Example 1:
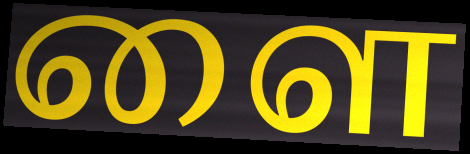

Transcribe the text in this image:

ளை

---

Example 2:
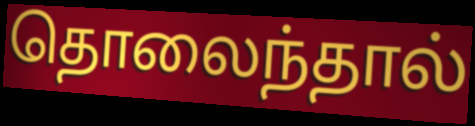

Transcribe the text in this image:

தொலைந்தால்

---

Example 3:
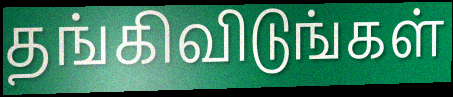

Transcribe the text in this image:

தங்கிவிடுங்கள்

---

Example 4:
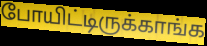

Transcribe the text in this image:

போயிட்டிருக்காங்க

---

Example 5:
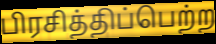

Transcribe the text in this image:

பிரசித்திப்பெற்ற